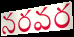
నరవర